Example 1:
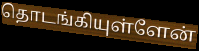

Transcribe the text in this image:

தொடங்கியுள்ளேன்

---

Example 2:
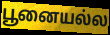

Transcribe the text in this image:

பூனையல்ல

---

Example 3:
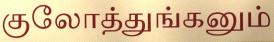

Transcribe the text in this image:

குலோத்துங்கனும்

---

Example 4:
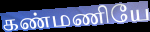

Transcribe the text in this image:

கண்மணியே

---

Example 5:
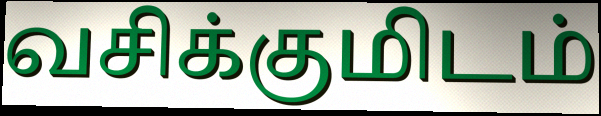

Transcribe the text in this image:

வசிக்குமிடம்